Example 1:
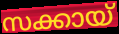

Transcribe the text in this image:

സക്കായ്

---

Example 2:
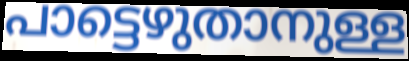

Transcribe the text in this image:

പാട്ടെഴുതാനുള്ള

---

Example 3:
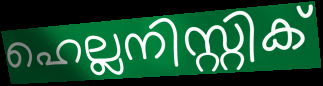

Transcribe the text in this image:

ഹെല്ലനിസ്റ്റിക്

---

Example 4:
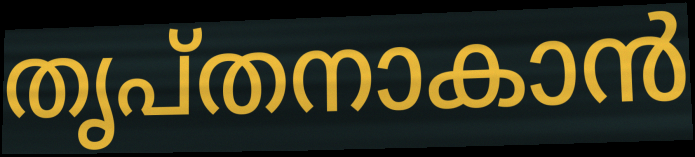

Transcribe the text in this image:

തൃപ്തനാകാൻ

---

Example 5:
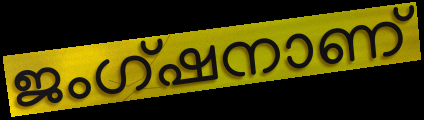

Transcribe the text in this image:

ജംഗ്ഷനാണ്